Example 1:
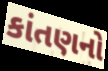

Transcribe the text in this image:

કાંતણનો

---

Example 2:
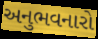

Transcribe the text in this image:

અનુભવનારો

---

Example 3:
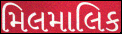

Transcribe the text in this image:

મિલમાલિક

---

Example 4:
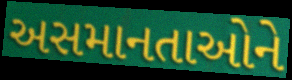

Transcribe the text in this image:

અસમાનતાઓને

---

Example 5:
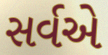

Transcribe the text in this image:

સર્વએ